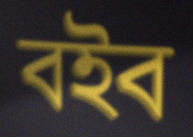
বইব